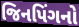
જિનપિંગનો